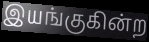
இயங்குகின்ற